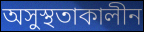
অসুস্থতাকালীন